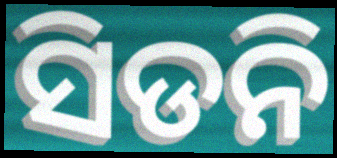
ସିଡନି